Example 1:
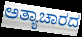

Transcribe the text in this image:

ಅತ್ಯಾಚಾರದ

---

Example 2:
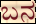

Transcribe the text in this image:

ಬನ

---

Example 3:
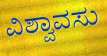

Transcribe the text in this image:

ವಿಶ್ವಾವಸು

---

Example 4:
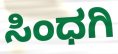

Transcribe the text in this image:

ಸಿಂಧಗಿ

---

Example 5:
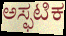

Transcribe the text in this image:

ಅಸ್ಫಟಿಕ